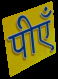
पीएँ